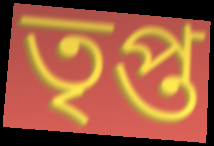
তৃপ্ত